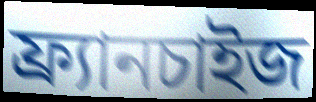
ফ্র্যানচাইজ